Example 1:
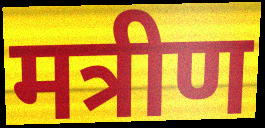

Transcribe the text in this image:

मत्रीण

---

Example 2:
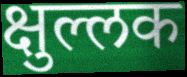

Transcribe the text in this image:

क्षुल्लक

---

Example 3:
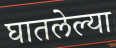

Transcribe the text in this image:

घातलेल्या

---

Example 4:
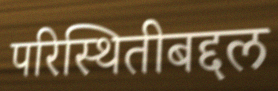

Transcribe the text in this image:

परिस्थितीबद्दल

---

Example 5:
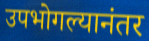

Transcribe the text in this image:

उपभोगल्यानंतर